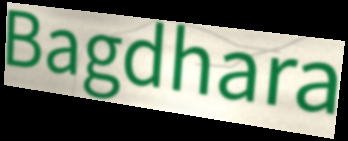
Bagdhara